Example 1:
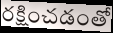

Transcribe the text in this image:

రక్షించడంతో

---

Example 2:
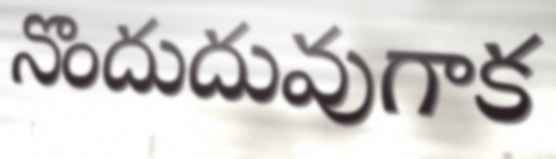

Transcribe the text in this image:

నొందుదువుగాక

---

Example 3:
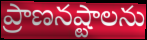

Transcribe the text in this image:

ప్రాణనష్టాలను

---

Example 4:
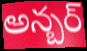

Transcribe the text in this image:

అన్బర్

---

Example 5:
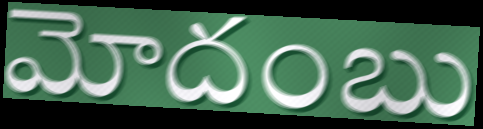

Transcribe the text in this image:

మోదంబు